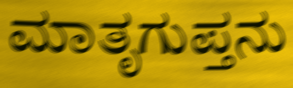
ಮಾತೃಗುಪ್ತನು